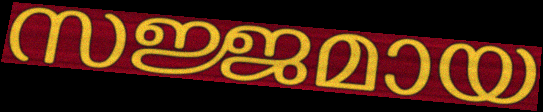
സജ്ജമായ